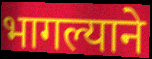
भागल्याने